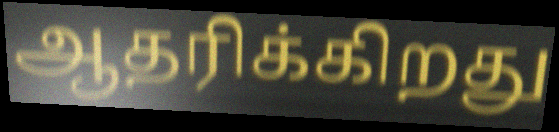
ஆதரிக்கிறது